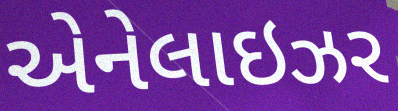
એનેલાઇઝર